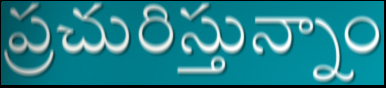
ప్రచురిస్తున్నాం